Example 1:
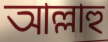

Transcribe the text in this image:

আল্লাহু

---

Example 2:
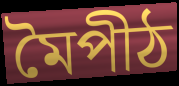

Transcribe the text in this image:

মৈপীঠ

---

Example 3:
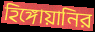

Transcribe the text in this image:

হিঙ্গোয়ানির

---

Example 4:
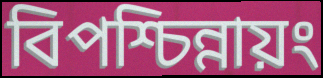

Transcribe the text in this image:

বিপশ্চিন্নায়ং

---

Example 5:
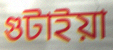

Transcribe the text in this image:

গুটাইয়া